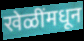
खेळींमधून